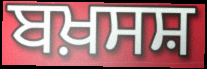
ਬਖ਼ਸਸ਼